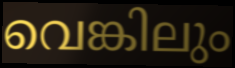
വെങ്കിലും